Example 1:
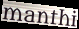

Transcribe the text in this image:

manthi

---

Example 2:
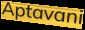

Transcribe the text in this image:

Aptavani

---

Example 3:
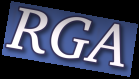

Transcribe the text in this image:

RGA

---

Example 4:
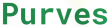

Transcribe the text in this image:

Purves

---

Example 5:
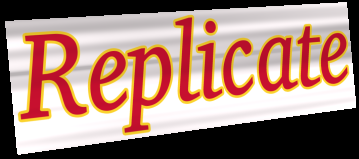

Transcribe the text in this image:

Replicate